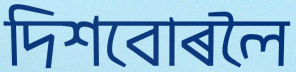
দিশবোৰলৈ